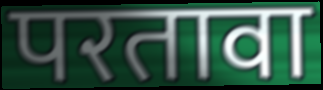
परतावा